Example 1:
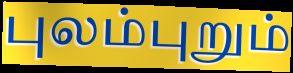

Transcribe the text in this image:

புலம்புறும்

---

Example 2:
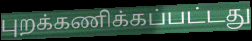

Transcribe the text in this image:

புறக்கணிக்கப்பட்டது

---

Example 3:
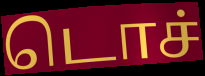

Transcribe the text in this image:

டொச்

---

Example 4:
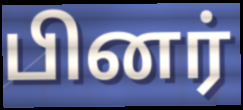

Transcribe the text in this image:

பினர்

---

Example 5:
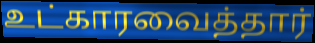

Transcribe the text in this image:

உட்காரவைத்தார்